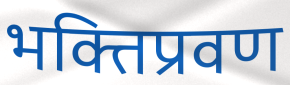
भक्तिप्रवण